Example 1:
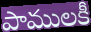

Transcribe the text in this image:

పాములకీ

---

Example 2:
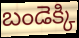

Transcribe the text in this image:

బండెక్కి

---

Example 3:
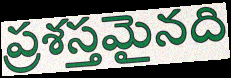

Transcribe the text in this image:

ప్రశస్తమైనది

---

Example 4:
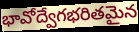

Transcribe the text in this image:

భావోద్వేగభరితమైన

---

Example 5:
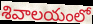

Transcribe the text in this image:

శివాలయంలో